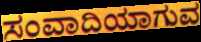
ಸಂವಾದಿಯಾಗುವ